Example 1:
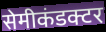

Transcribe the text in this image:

सेमीकंडक्टर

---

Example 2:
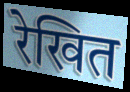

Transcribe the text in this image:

रेखित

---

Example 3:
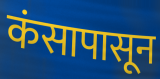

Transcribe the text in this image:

कंसापासून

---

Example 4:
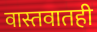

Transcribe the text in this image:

वास्तवातही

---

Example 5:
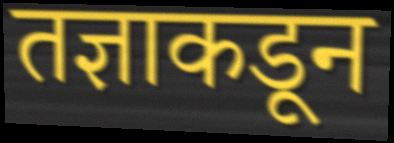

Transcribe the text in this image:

तज्ञाकडून